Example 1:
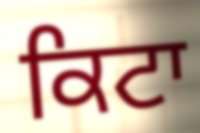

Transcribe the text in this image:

ਕਿਟਾ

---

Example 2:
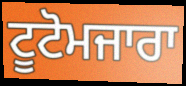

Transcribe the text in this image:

ਟੂਟੋਮਜਾਰਾ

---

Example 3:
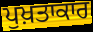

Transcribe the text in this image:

ਪੁਖ਼ਤਾਕਾਰ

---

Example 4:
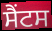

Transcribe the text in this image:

ਸੈਂਟਸ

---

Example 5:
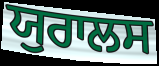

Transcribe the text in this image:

ਯੁਰਾਲਸ